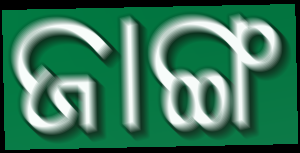
ଜାଙ୍ଗ